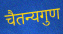
चैतन्यगुण